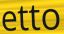
etto